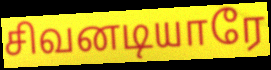
சிவனடியாரே